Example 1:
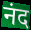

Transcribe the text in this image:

नंद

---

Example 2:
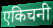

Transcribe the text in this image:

एकिचनी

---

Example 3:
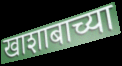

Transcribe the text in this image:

खाशाबाच्या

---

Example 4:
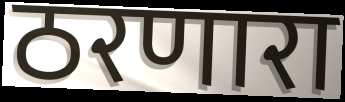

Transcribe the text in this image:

ठरणारा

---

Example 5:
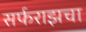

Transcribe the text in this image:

सर्फराझचा